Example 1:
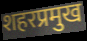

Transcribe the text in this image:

शहरप्रमुख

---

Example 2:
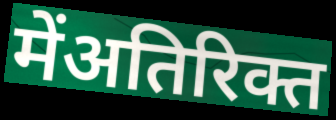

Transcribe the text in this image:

मेंअतिरिक्त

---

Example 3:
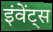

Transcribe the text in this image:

इंवेंट्स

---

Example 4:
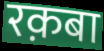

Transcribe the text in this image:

रक़बा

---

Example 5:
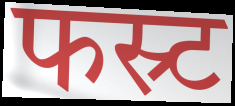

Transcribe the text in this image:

फस्र्ट